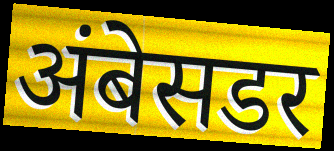
अंबेसडर